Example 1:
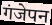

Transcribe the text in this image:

गंजेपन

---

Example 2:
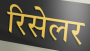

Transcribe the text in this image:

रिसेलर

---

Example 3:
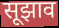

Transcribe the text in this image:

सूझाव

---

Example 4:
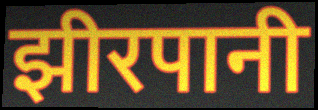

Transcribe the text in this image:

झीरपानी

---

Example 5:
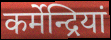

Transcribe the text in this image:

कर्मेन्द्रियां